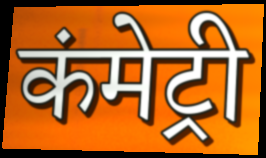
कंमेट्री